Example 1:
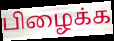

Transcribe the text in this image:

பிழைக்க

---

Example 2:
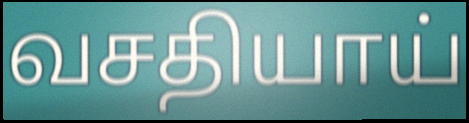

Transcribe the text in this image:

வசதியாய்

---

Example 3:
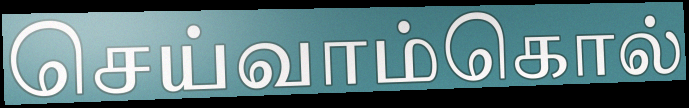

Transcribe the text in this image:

செய்வாம்கொல்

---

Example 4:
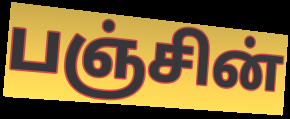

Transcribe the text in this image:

பஞ்சின்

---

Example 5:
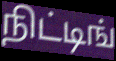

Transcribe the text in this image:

நிட்டிங்